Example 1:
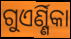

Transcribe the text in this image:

ଗୁଏର୍ଣ୍ଣିକା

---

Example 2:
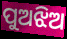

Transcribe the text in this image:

ପୁଅଝିଅ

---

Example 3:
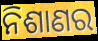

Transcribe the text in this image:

ନିଶାଣର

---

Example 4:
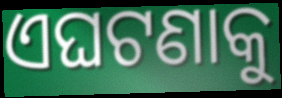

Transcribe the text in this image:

ଏଘଟଣାକୁ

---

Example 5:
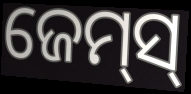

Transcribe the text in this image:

ଜେମ୍‌ସ୍